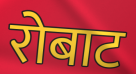
रोबाट